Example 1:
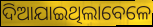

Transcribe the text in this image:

ଦିଆଯାଇଥିଲାବେଳେ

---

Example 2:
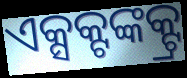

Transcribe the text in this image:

ଏକ୍ସକ୍ଟଙ୍କକ୍ଟ୍ର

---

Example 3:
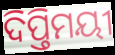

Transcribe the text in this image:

ଦିପ୍ତିମୟୀ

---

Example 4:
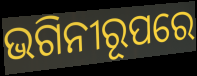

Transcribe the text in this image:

ଭଗିନୀରୂପରେ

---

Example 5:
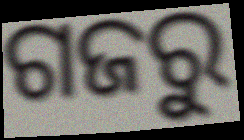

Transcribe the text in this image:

ଗଜରୁ